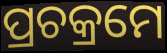
ପ୍ରଚକ୍ରମେ